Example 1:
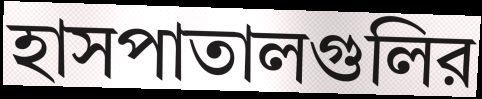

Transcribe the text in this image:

হাসপাতালগুলির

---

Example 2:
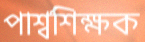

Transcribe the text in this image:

পার্শ্বশিক্ষক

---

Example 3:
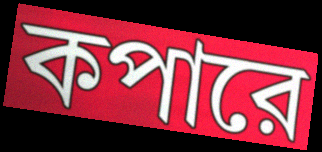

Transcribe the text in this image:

কপারে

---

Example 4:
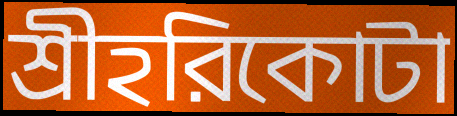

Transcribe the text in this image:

শ্রীহরিকোটা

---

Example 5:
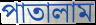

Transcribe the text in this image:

পাতালাম